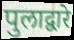
पुलाद्वारे